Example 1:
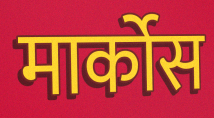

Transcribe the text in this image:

मार्कोस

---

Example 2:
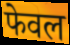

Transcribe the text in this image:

फेवल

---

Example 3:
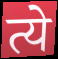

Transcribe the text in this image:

त्ये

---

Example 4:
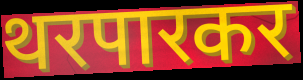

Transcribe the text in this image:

थरपारकर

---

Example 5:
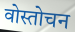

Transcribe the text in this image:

वोस्तोचन